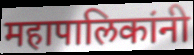
महापालिकांनी